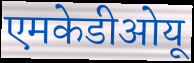
एमकेडीओयू